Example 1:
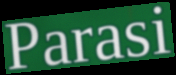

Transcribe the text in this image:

Parasi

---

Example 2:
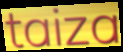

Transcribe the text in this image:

taiza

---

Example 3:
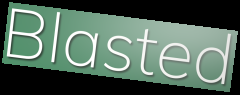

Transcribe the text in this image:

Blasted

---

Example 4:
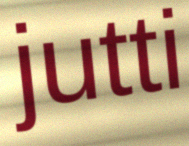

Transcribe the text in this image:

jutti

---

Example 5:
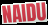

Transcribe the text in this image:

NAIDU